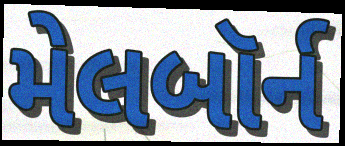
મેલબૉર્ન